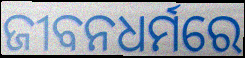
ଜୀବନଧର୍ମରେ